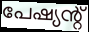
പേഷ്യന്റ്